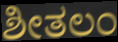
ಶೀತಲಂ